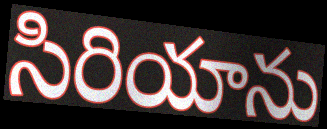
సిరియాను